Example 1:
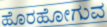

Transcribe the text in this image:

ಹೊರಹೋಗುವ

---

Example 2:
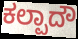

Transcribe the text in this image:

ಕಲ್ಪಾದೌ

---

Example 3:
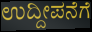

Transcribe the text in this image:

ಉದ್ದೀಪನೆಗೆ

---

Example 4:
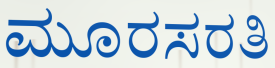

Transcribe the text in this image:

ಮೂರಸರತಿ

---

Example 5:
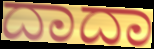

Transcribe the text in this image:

ದಾದಾ